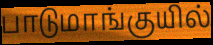
பாடுமாங்குயில்